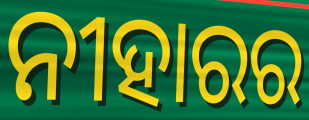
ନୀହାରର